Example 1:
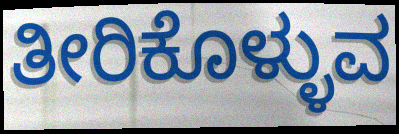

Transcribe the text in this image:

ತೀರಿಕೊಳ್ಳುವ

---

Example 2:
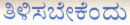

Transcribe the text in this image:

ತಿಳಿಸಬೇಕೆಂದು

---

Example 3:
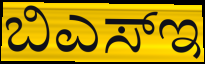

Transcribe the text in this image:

ಬಿಎಸ್ಇ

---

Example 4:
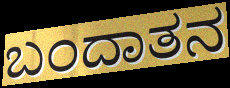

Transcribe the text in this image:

ಬಂದಾತನ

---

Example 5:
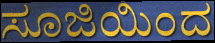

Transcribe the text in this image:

ಸೂಜಿಯಿಂದ